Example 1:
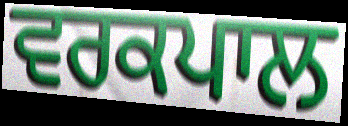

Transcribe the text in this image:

ਵਰਕਪਾਲ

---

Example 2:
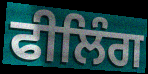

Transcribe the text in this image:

ਫੀਲਿੰਗ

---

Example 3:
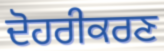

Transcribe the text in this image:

ਦੋਹਰੀਕਰਣ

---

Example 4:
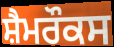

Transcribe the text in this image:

ਸ਼ੈਮਰੌਕਸ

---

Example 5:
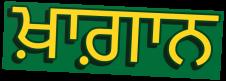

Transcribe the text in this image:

ਖ਼ਾਗ਼ਾਨ